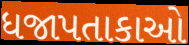
ધજાપતાકાઓ